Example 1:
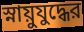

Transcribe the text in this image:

স্নায়ুযুদ্ধের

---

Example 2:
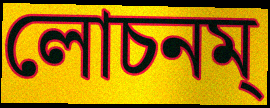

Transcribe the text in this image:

লোচনম্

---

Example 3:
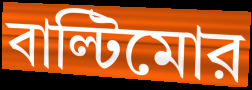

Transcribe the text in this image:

বাল্টিমোর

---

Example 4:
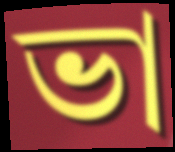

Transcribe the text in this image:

ভা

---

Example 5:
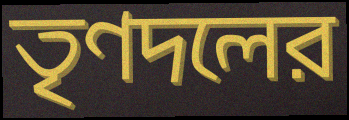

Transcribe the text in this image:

তৃণদলের